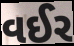
વઈર